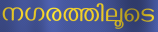
നഗരത്തിലൂടെ